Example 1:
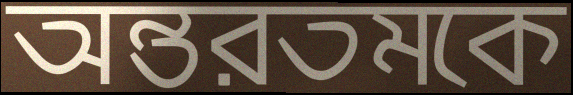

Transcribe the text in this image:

অন্তরতমকে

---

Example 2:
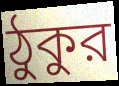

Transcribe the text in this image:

ঠুকুর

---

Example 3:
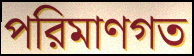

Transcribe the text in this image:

পরিমাণগত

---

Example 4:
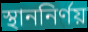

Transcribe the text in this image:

স্থাননির্ণয়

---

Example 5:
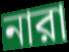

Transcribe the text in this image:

নারা